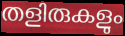
തളിരുകളും